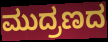
ಮುದ್ರಣದ